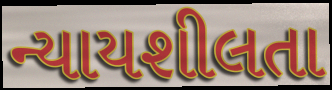
ન્યાયશીલતા